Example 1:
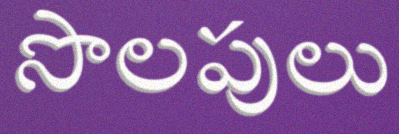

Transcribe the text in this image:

సొలపులు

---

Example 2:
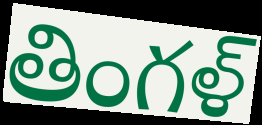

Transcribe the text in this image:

తింగళ్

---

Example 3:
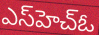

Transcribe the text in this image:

ఎస్‌హెచ్ఓ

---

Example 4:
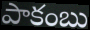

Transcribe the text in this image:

పాకంబు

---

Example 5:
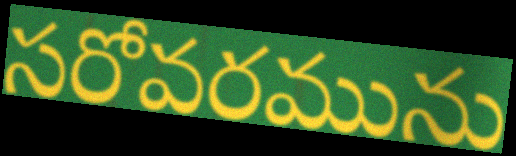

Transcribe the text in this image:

సరోవరమును